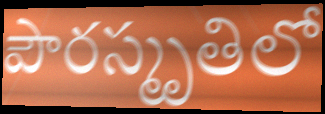
పౌరస్మృతిలో